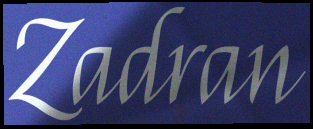
Zadran